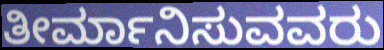
ತೀರ್ಮಾನಿಸುವವರು